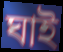
ঘাই